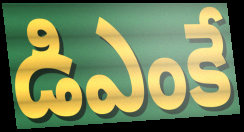
డిఎంకే